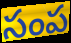
సంప